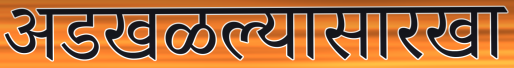
अडखळल्यासारखा